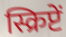
स्क्रिप्टें